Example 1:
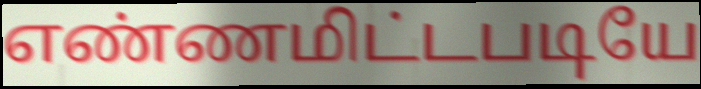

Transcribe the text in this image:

எண்ணமிட்டபடியே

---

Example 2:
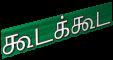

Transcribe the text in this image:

கூடக்கூட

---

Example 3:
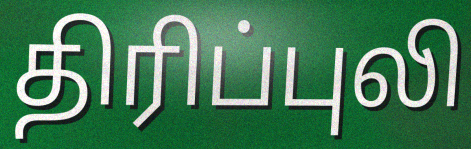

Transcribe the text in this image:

திரிப்புலி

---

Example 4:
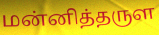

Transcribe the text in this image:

மன்னித்தருள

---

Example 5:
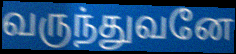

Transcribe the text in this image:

வருந்துவனே